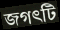
জগৎটি